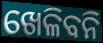
ଖେଳିବନି